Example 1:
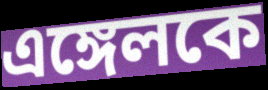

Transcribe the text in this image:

এঙ্গেলকে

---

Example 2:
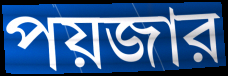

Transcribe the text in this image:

পয়জার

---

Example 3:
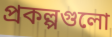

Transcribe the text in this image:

প্রকল্পগুলো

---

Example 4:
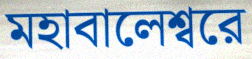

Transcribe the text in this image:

মহাবালেশ্বরে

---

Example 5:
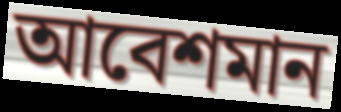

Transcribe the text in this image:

আবেশমান